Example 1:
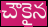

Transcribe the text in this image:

చౌకైన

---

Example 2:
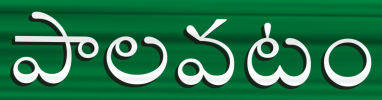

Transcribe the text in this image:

పాలవటం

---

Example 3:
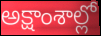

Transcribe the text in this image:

అక్షాంశాల్లో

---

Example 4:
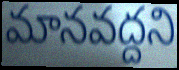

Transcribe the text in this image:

మానవద్దని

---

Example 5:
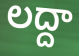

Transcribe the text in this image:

లద్దా